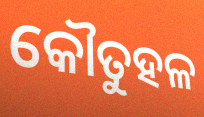
କୌତୁହଳ